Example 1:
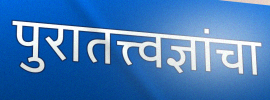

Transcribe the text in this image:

पुरातत्त्वज्ञांचा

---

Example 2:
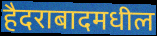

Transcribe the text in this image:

हैदराबादमधील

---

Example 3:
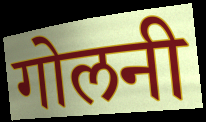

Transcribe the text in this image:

गोलनी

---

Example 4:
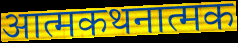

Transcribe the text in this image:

आत्मकथनात्मक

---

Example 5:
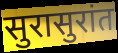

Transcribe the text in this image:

सुरासुरांत